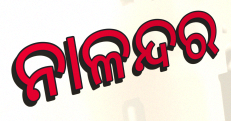
ନାଳନ୍ଦର